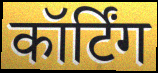
कॉर्टिंग